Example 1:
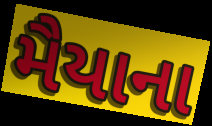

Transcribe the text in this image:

મૈયાના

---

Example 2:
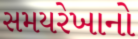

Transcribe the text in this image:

સમયરેખાનો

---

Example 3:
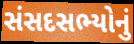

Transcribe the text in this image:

સંસદસભ્યોનું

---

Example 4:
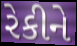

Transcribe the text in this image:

રેકીને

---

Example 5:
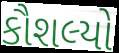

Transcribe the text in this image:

કૌશલ્યો